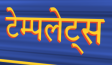
टेम्पलेट्स